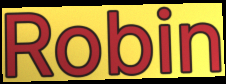
Robin